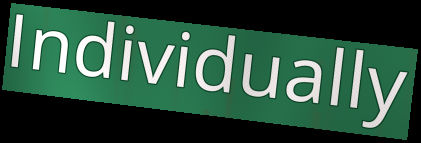
Individually